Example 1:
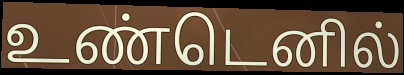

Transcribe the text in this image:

உண்டெனில்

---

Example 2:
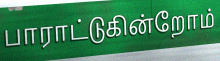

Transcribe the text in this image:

பாராட்டுகின்றோம்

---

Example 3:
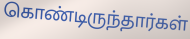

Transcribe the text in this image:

கொண்டிருந்தார்கள்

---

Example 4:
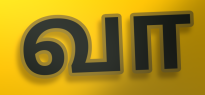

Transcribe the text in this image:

வா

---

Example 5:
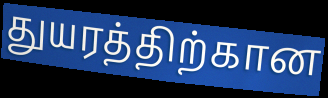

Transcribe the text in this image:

துயரத்திற்கான